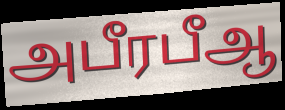
அபீரபீஆ